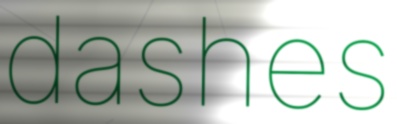
dashes